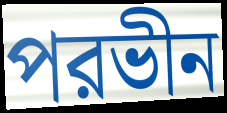
পরভীন